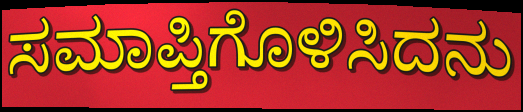
ಸಮಾಪ್ತಿಗೊಳಿಸಿದನು